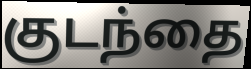
குடந்தை